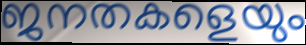
ജനതകളെയും